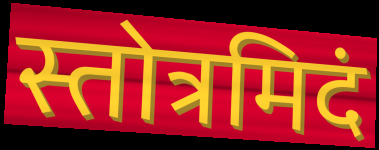
स्तोत्रमिदं